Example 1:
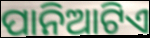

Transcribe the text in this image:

ପାନିଆଟିଏ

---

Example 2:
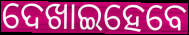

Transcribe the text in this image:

ଦେଖାଇହେବେ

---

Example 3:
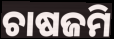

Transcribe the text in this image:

ଚାଷଜମି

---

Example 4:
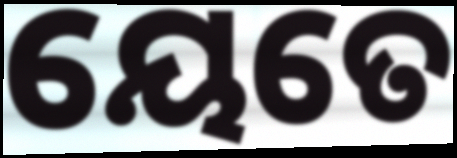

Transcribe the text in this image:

ୟେତେ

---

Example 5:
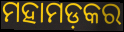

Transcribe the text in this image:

ମହାମଡ଼କର